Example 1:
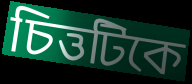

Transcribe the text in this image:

চিত্তটিকে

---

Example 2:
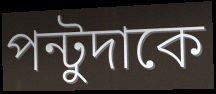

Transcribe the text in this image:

পন্টুদাকে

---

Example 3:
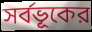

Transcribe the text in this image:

সর্বভূকের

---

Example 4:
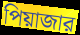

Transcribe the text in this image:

পিয়াজার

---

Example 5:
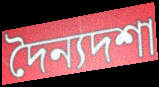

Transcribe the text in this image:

দৈন্যদশা